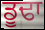
ਡੂਢਾ